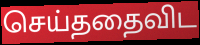
செய்ததைவிட